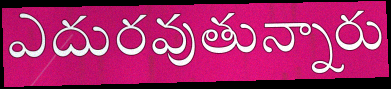
ఎదురవుతున్నారు